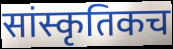
सांस्कृतिकच